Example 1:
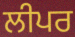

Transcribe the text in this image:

ਲੀਪਰ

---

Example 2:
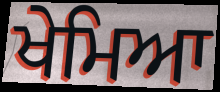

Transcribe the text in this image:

ਖੇਮਿਆ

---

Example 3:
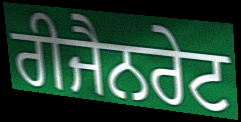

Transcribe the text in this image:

ਰੀਜੈਨਰੇਟ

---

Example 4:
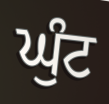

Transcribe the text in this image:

ਘੁੰਟ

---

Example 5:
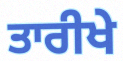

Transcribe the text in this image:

ਤਾਰੀਖੇ